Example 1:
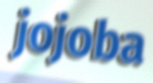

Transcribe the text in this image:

jojoba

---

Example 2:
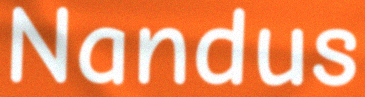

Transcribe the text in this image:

Nandus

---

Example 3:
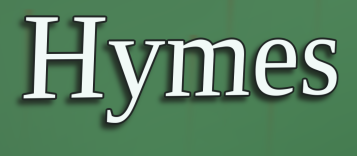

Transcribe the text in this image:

Hymes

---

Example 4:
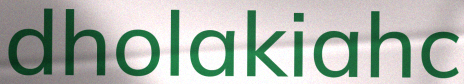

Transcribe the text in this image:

dholakiahc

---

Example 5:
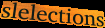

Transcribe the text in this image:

slelections